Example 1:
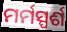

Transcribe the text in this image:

ମର୍ମସ୍ପର୍ଶ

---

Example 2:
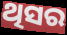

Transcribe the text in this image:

ଥିସର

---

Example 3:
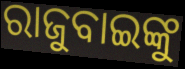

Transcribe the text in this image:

ରାଜୁବାଇଙ୍କୁ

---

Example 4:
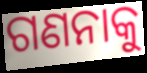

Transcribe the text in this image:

ଗଣନାକୁ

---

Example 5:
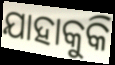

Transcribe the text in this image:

ଯାହାକୁକି